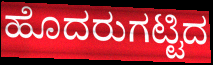
ಹೊದರುಗಟ್ಟಿದ